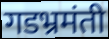
गडभ्रमंती